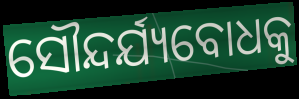
ସୌନ୍ଦର୍ଯ୍ୟବୋଧକୁ